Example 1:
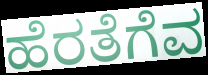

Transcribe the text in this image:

ಹೆರತೆಗೆವ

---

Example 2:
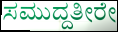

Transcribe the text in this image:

ಸಮುದ್ದತೀರೇ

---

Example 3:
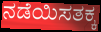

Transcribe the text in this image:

ನಡೆಯಿಸತಕ್ಕ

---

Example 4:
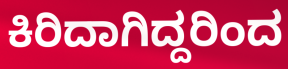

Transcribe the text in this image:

ಕಿರಿದಾಗಿದ್ದರಿಂದ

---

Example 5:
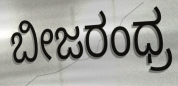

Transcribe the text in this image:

ಬೀಜರಂಧ್ರ